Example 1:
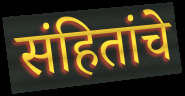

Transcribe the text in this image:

संहितांचे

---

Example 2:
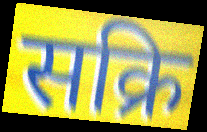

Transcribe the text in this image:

सक्रि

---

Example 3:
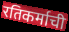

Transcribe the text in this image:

रतिकर्माची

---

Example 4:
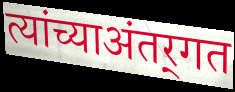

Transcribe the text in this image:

त्यांच्याअंतर्गत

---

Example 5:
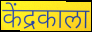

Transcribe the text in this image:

केंद्रकाला